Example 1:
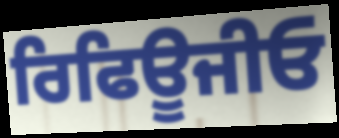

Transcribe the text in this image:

ਰਿਫਿਊਜੀਓ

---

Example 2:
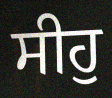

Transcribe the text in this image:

ਸੀਹੁ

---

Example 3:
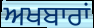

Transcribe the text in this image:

ਅਖਬਾਰਾਂ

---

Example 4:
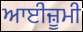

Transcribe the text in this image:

ਆਈਜ਼ੂਮੀ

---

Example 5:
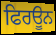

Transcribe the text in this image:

ਫਿਰਊਨ